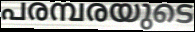
പരമ്പരയുടെ